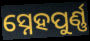
ସ୍ନେହପୁର୍ଣ୍ଣ